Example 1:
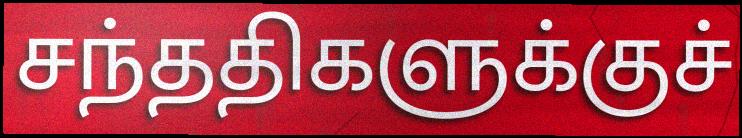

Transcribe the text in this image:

சந்ததிகளுக்குச்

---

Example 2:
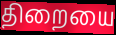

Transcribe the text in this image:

திறையை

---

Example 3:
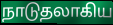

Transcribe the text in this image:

நாடுதலாகிய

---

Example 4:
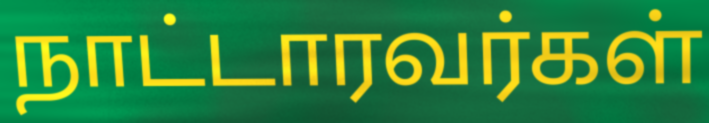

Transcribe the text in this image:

நாட்டாரவர்கள்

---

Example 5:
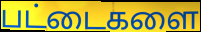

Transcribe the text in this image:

பட்டைகளை